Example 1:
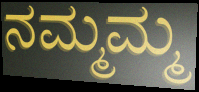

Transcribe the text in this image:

ನಮ್ಮಮ್ಮ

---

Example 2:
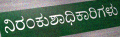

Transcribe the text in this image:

ನಿರಂಕುಶಾಧಿಕಾರಿಗಳು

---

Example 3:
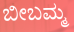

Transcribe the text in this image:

ಬೀಬಮ್ಮ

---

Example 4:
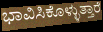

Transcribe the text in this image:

ಭಾವಿಸಿಕೊಳ್ಳುತ್ತಾರೆ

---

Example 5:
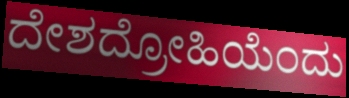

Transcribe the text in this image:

ದೇಶದ್ರೋಹಿಯೆಂದು